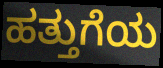
ಹತ್ತುಗೆಯ